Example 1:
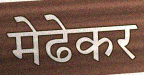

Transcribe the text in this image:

मेढेकर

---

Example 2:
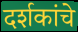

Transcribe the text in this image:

दर्शकांचे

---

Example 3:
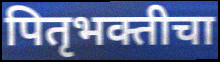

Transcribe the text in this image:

पितृभक्तीचा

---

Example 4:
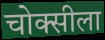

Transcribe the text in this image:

चोक्सीला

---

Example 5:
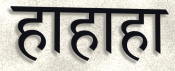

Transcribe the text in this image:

हाहाहा